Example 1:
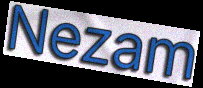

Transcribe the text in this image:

Nezam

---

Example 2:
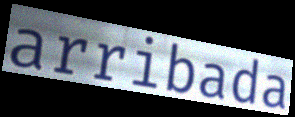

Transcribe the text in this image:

arribada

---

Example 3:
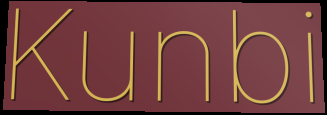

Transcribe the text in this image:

Kunbi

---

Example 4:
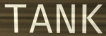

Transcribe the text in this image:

TANK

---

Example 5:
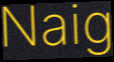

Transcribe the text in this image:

Naig